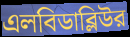
এলবিডাব্লিউর